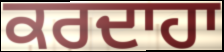
ਕਰਦਾਹਾ